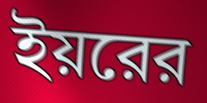
ইয়রের